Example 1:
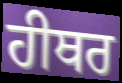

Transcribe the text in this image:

ਹੀਥਰ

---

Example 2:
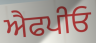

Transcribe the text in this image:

ਐਫਪੀਓ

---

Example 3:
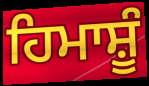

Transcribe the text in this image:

ਹਿਮਾਸ਼ੂੰ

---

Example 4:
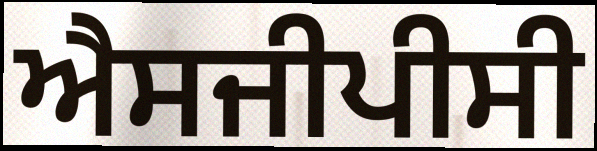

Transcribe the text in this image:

ਐਸਜੀਪੀਸੀ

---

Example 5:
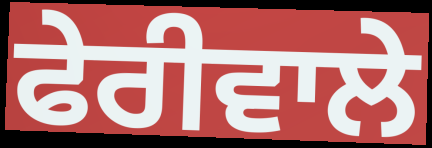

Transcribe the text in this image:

ਫੇਰੀਵਾਲੇ